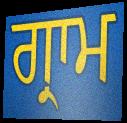
ਗ੍ਰਾਮ